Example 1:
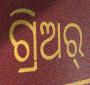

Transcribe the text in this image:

ଗ୍ରିଅର୍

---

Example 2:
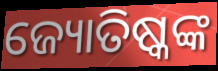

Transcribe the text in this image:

ଜ୍ୟୋତିଷ୍କଙ୍କ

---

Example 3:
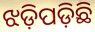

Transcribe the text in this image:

ଝଡ଼ିପଡ଼ିଛି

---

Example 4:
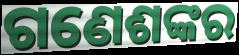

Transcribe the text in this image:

ଗଣେଶଙ୍କର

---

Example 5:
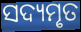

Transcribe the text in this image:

ସଦ୍ୟମୃତ